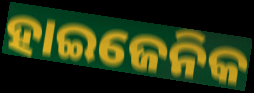
ହାଇଜେନିକ